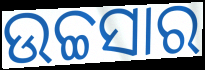
ଉଚ୍ଚସାର